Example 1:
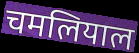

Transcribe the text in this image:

चमलियाल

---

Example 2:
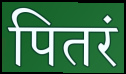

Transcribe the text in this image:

पितरं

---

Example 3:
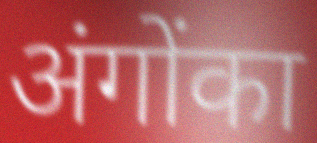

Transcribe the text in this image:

अंगोंका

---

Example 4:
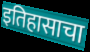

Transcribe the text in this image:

इतिहासाचा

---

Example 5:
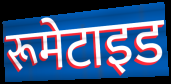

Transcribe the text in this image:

रूमेटाइड